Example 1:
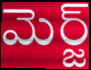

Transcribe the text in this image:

మెర్జ్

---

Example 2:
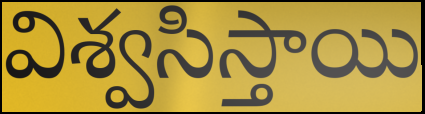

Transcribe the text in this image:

విశ్వసిస్తాయి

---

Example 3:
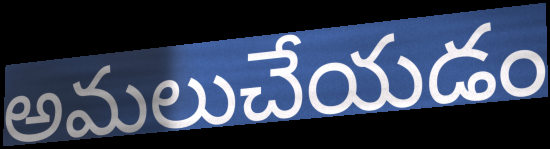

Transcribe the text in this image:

అమలుచేయడం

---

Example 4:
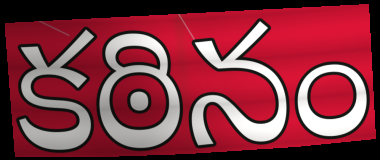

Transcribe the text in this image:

కఠినం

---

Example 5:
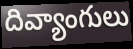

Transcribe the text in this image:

దివ్యాంగులు